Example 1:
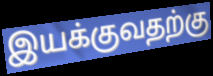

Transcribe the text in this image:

இயக்குவதற்கு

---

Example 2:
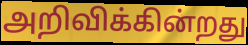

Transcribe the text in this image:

அறிவிக்கின்றது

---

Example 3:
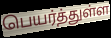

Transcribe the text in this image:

பெயர்த்துள்ள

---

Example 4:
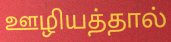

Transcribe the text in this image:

ஊழியத்தால்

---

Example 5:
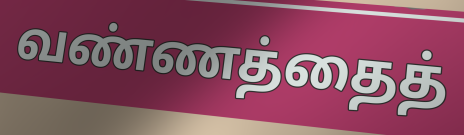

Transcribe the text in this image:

வண்ணத்தைத்